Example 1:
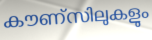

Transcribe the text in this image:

കൗണ്സിലുകളും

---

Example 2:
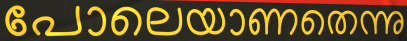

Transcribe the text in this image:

പോലെയാണതെന്നു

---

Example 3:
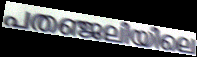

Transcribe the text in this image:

പതഞ്ജലിയിലെ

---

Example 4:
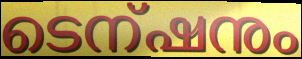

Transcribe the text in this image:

ടെന്ഷനും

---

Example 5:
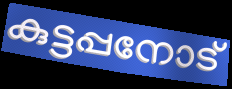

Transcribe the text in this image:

കുട്ടപ്പനോട്